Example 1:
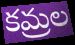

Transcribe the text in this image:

కమ్రల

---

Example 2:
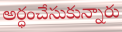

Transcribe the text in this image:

అర్ధంచేసుకున్నారు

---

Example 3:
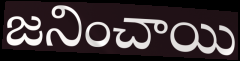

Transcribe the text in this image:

జనించాయి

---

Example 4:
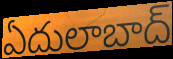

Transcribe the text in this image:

ఏదులాబాద్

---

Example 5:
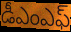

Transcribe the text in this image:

డీఎంఎఫ్